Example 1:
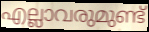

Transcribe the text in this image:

എല്ലാവരുമുണ്ട്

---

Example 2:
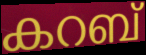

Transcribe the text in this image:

കറബ്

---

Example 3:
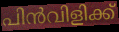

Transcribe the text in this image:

പിൻവിളിക്ക്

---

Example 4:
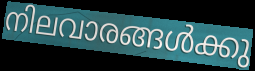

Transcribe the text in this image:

നിലവാരങ്ങൾക്കു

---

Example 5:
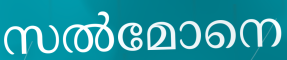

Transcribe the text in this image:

സൽമോനെ